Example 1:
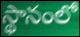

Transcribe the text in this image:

స్థానంలో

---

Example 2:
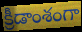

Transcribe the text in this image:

క్రీడాంశంగా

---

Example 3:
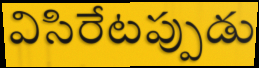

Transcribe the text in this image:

విసిరేటప్పుడు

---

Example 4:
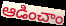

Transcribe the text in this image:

ఆడించాం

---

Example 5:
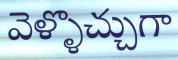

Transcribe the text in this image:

వెళ్ళొచ్చుగా